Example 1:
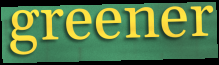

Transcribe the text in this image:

greener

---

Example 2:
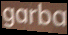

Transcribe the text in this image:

garba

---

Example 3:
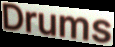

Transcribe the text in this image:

Drums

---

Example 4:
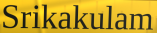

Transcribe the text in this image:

Srikakulam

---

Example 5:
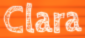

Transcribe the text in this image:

Clara